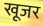
खूजर